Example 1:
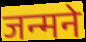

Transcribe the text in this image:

जन्मने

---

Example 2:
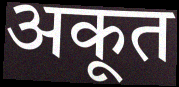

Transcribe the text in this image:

अकूत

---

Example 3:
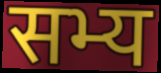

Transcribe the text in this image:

सभ्य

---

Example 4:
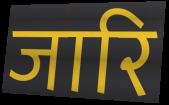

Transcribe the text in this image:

जारि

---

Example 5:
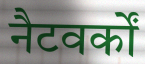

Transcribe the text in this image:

नैटवर्कों